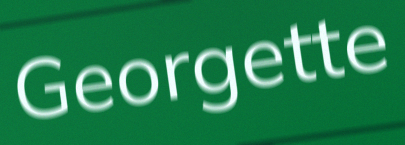
Georgette